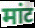
मांट